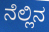
ನೆಲ್ಲಿನ